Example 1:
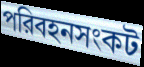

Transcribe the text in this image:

পরিবহনসংকট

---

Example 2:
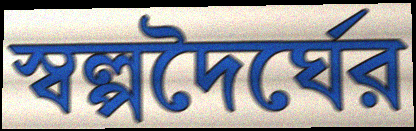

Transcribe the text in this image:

স্বল্পদৈর্ঘের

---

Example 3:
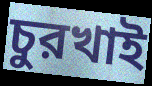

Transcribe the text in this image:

চুরখাই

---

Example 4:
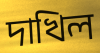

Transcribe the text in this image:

দাখিল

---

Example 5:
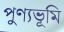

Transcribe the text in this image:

পুণ্যভূমি